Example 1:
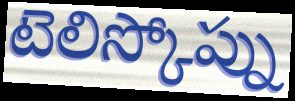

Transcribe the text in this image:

టెలిస్కోప్ను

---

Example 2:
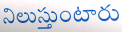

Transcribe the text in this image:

నిలుస్తుంటారు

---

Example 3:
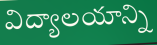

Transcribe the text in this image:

విద్యాలయాన్ని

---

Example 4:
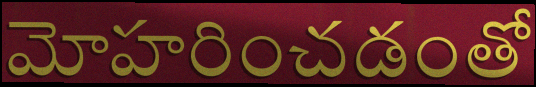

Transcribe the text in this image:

మోహరించడంతో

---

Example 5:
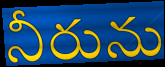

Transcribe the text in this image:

నీరును